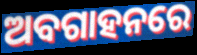
ଅବଗାହନରେ